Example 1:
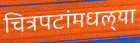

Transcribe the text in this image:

चित्रपटांमधल्या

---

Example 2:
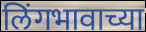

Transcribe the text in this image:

लिंगभावाच्या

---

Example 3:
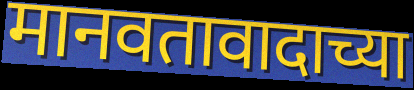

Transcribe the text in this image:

मानवतावादाच्या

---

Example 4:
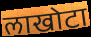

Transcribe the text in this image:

लाखोटा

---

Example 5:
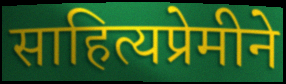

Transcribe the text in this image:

साहित्यप्रेमीने